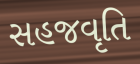
સહજવૃતિ